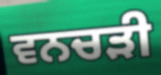
ਵਨਚੜੀ